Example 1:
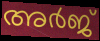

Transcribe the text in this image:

അർജ്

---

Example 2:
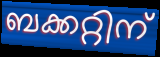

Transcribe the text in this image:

ബക്കറ്റിന്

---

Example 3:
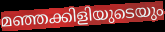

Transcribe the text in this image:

മഞ്ഞക്കിളിയുടെയും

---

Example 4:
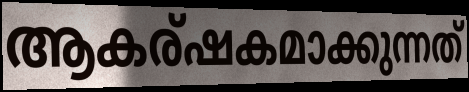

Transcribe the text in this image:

ആകര്ഷകമാക്കുന്നത്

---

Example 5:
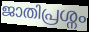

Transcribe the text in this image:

ജാതിപ്രശ്നം